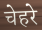
चेहरे